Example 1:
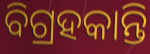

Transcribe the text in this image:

ବିଗ୍ରହକାନ୍ତି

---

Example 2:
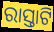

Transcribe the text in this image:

ରାସ୍ତାଟି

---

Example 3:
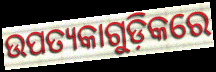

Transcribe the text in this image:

ଉପତ୍ୟକାଗୁଡ଼ିକରେ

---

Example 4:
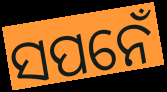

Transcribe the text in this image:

ସପନେଁ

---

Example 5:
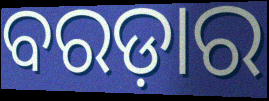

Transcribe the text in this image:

ବରଡ଼ାର